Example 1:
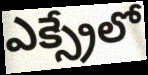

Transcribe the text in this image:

ఎక్స్రేలో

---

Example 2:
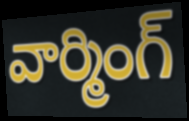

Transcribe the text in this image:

వార్మింగ్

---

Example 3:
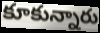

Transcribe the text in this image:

కూకున్నారు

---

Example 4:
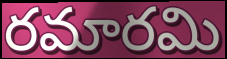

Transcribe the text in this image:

రమారమి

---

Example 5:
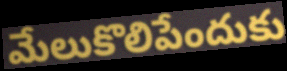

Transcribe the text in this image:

మేలుకొలిపేందుకు